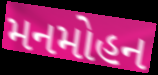
મનમોહન